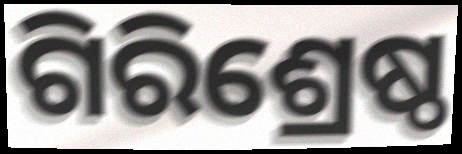
ଗିରିଶ୍ରେଷ୍ଠ